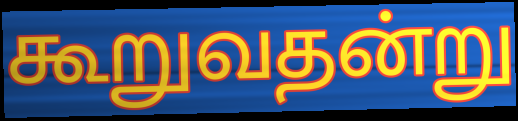
கூறுவதன்று